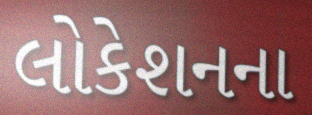
લોકેશનના